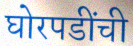
घोरपडींची